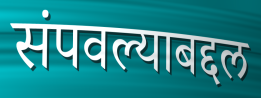
संपवल्याबद्दल